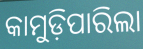
କାମୁଡ଼ିପାରିଲା